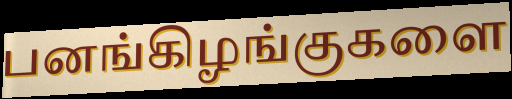
பனங்கிழங்குகளை